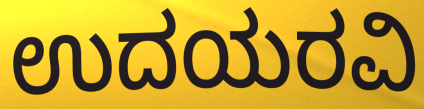
ಉದಯರವಿ